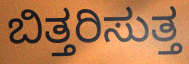
ಬಿತ್ತರಿಸುತ್ತ